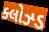
ક્લોઝ્ડ